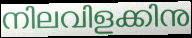
നിലവിളക്കിനു